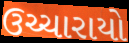
ઉચ્ચારાયો